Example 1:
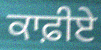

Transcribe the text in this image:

ਕਾਫ਼ੀਏ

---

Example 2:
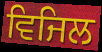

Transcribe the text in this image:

ਵਿਜਿਲ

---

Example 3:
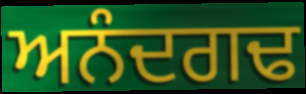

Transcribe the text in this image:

ਅਨੰਦਗਢ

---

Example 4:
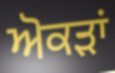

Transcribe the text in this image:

ਅੋਕੜਾਂ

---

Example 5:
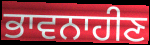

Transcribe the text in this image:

ਭਾਵਨਾਹੀਣ